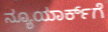
ನ್ಯೂಯಾರ್ಕ್‌ಗೆ